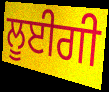
ਲੂਈਗੀ